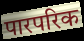
पारपरिक